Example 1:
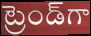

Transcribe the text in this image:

ట్రెండ్‌గా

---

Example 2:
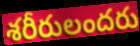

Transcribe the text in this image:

శరీరులందరు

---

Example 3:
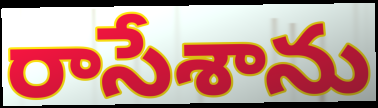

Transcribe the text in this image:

రాసేశాను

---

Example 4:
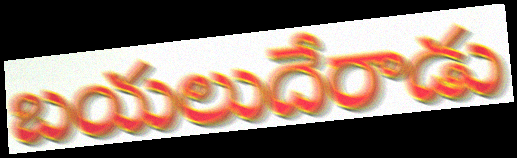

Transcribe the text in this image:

బయలుదేరాడు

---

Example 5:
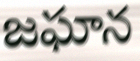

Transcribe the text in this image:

జఘాన